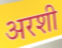
अरशी